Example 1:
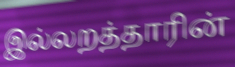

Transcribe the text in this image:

இல்லறத்தாரின்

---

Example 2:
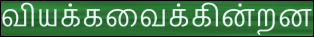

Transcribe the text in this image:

வியக்கவைக்கின்றன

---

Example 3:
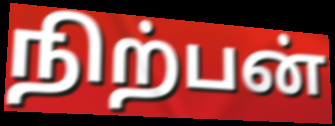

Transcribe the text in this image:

நிற்பன்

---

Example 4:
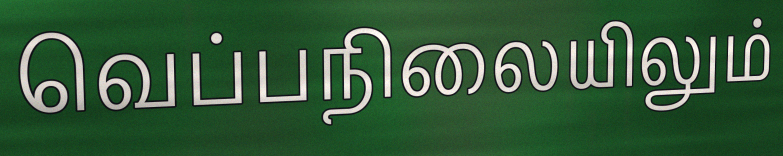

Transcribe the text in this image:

வெப்பநிலையிலும்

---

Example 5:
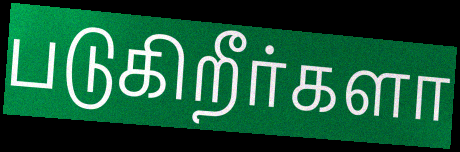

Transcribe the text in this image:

படுகிறீர்களா